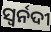
ସ୍ୱର୍ନଦୀ